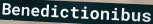
Benedictionibus